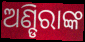
ଅଣ୍ଡିରାଙ୍କ